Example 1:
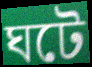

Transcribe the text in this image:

ঘটে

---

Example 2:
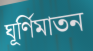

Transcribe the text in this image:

ঘূর্ণিমাতন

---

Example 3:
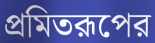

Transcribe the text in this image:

প্রমিতরূপের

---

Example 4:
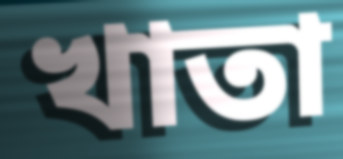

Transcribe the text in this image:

খাতা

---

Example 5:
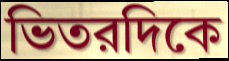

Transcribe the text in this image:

ভিতরদিকে